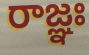
రాజ్ఞః